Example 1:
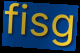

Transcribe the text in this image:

fisg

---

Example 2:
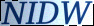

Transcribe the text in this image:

NIDW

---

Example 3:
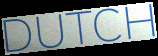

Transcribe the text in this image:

DUTCH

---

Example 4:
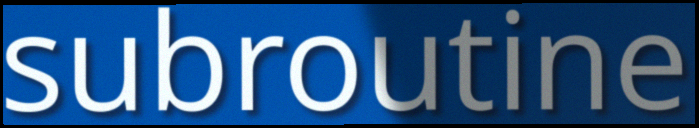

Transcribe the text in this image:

subroutine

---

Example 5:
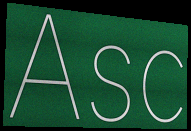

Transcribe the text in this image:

Asc